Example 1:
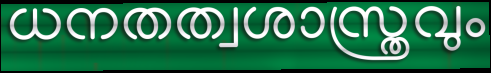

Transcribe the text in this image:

ധനതത്വശാസ്ത്രവും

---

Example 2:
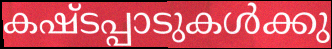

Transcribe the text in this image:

കഷ്ടപ്പാടുകൾക്കു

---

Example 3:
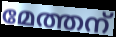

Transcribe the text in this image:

മേത്തന്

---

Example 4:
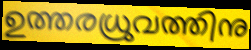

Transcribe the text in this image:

ഉത്തരധ്രുവത്തിനു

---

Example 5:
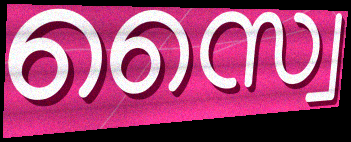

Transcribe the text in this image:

സ്വൈ